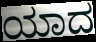
ಯಾದ